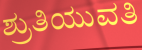
ಶ್ರುತಿಯುವತಿ